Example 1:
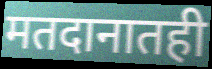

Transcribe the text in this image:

मतदानातही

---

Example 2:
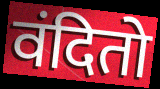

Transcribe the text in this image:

वंदितो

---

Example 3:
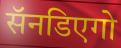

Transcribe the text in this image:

सॅनडिएगो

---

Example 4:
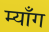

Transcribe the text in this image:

म्याँग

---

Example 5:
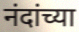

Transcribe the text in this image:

नंदांच्या